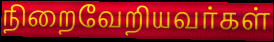
நிறைவேறியவர்கள்